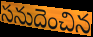
సనుదెంచిన